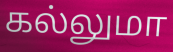
கல்லுமா